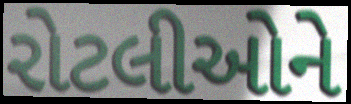
રોટલીઓને